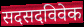
सदसदविवेक